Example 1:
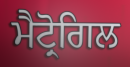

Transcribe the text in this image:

ਮੈਟ੍ਰੋਗਿਲ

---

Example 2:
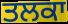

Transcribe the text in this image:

ਤਲਕਾ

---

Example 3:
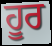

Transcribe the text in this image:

ਹੂਰ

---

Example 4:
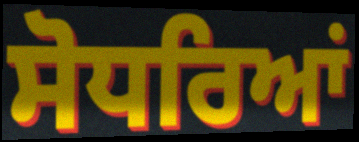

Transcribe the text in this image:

ਸੋਧਰਿਆਂ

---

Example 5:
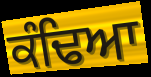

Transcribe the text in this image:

ਕੰਢਿਆ